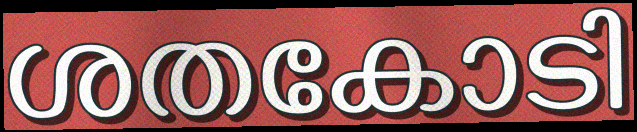
ശതകോടി